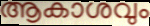
ആകാശവും